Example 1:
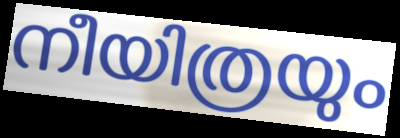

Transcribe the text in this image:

നീയിത്രയും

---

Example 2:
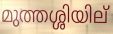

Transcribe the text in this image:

മുത്തശ്ശിയില്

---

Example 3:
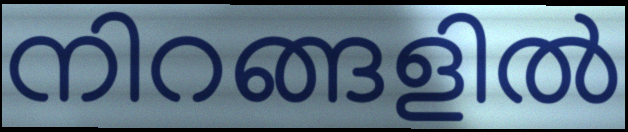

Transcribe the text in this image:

നിറങ്ങളിൽ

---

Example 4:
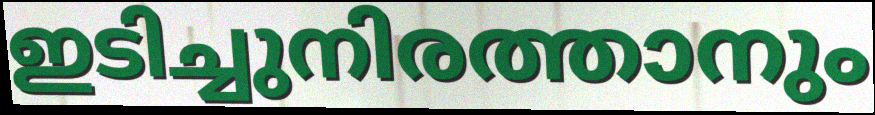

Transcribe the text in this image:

ഇടിച്ചുനിരത്താനും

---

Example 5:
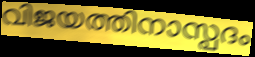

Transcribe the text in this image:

വിജയത്തിനാസ്പദം